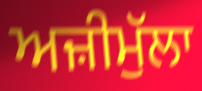
ਅਜ਼ੀਮੁੱਲਾ